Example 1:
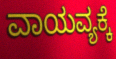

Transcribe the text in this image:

ವಾಯವ್ಯಕ್ಕೆ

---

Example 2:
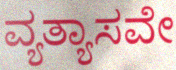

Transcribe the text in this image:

ವ್ಯತ್ಯಾಸವೇ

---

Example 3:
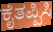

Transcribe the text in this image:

ಕೈತಪ್ಪಿಸಿ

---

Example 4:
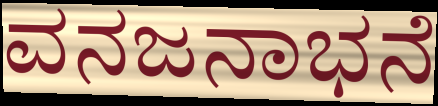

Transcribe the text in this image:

ವನಜನಾಭನೆ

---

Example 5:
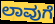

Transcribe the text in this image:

ಲಾವುಗೆ